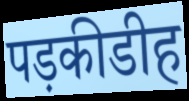
पड़कीडीह